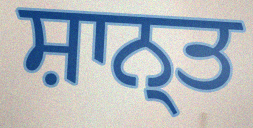
ਸ਼ਾਨ੍ਤ